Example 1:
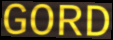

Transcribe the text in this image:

GORD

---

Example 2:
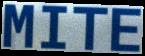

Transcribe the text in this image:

MITE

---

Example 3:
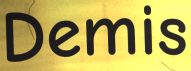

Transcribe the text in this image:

Demis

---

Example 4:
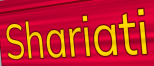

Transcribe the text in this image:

Shariati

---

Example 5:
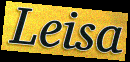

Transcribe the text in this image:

Leisa